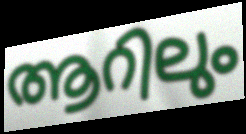
ആറിലും